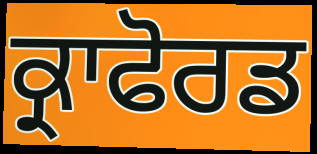
ਕ੍ਰਾਫੋਰਡ